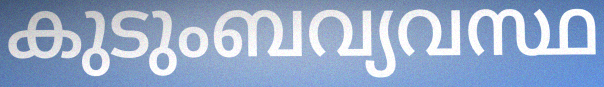
കുടുംബവ്യവസ്ഥ